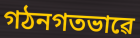
গঠনগতভাৱে